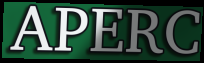
APERC